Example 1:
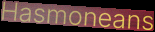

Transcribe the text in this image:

Hasmoneans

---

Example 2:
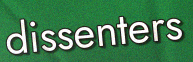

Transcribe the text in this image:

dissenters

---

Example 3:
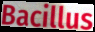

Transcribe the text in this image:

Bacillus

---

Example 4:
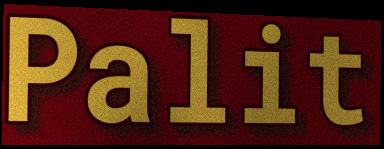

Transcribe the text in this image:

Palit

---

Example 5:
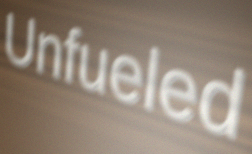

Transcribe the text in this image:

Unfueled